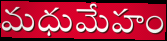
మధుమేహం